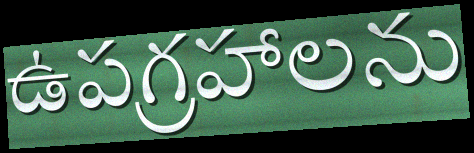
ఉపగ్రహాలను